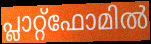
പ്ലാറ്റ്ഫോമിൽ